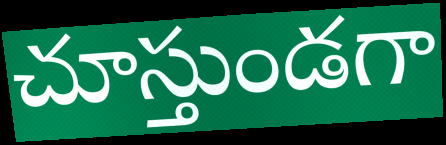
చూస్తుండగా